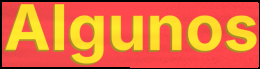
Algunos